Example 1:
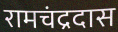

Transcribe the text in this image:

रामचंद्रदास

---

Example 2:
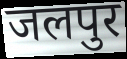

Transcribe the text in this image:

जलपुर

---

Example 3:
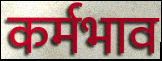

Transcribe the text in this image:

कर्मभाव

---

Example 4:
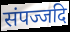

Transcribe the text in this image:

संपज्जदि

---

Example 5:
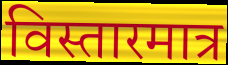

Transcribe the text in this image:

विस्तारमात्र